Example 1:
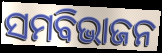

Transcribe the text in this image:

ସମବିଭାଜନ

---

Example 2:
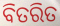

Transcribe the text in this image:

ବିତରିତ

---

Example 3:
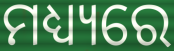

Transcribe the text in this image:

ମଧ୍ୟ୍ୟରେ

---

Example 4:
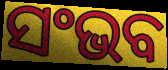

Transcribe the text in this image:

ସଂଭବ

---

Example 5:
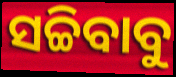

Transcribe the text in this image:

ସଚ୍ଚିବାବୁ